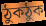
ঠুকঠুক